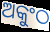
ଅକୁଂଠ